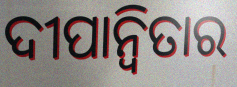
ଦୀପାନ୍ୱିତାର